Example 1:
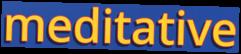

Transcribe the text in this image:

meditative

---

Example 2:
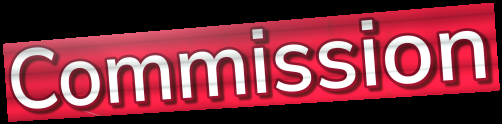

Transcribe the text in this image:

Commission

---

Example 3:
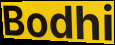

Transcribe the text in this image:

Bodhi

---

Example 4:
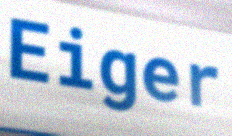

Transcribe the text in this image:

Eiger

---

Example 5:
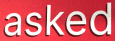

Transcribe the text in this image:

asked